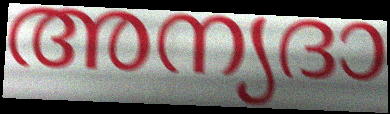
അന്യദാ